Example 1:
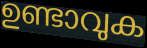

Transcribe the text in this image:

ഉണ്ടാവുക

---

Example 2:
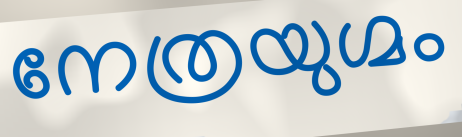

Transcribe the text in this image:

നേത്രയുഗ്മം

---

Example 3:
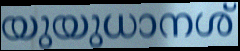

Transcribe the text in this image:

യുയുധാനശ്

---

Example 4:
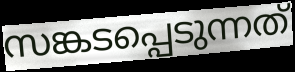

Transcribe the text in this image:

സങ്കടപ്പെടുന്നത്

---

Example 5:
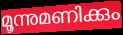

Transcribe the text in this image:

മൂന്നുമണിക്കും